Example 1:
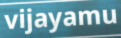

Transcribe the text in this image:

vijayamu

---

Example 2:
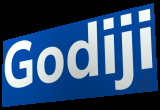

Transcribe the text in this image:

Godiji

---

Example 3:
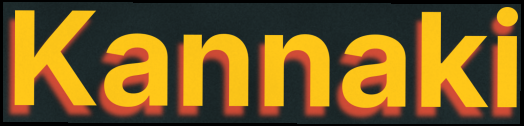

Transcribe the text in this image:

Kannaki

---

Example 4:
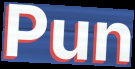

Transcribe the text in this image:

Pun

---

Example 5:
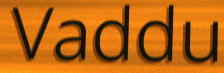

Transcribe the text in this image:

Vaddu